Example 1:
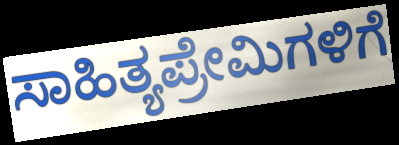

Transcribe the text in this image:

ಸಾಹಿತ್ಯಪ್ರೇಮಿಗಳಿಗೆ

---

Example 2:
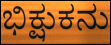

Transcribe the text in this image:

ಭಿಕ್ಷುಕನು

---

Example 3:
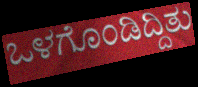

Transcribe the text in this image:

ಒಳಗೊಂಡಿದ್ದಿತು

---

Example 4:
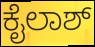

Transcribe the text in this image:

ಕೈಲಾಶ್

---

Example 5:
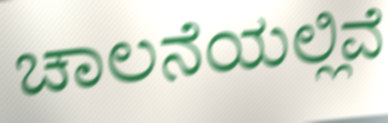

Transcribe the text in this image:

ಚಾಲನೆಯಲ್ಲಿವೆ